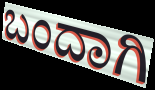
ಬಂದಾಗಿ